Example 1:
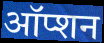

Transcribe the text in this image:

ऑप्शन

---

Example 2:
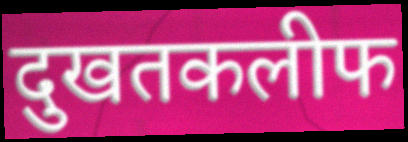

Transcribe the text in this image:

दुखतकलीफ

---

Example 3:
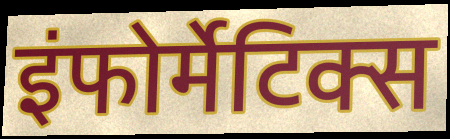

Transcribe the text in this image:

इंफोर्मेटिक्स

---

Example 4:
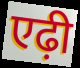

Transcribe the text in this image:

एढ़ी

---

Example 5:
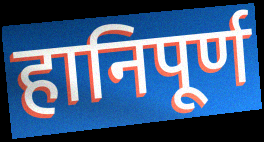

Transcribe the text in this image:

हानिपूर्ण